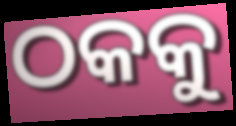
ଠକକୁ